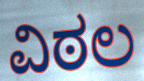
ವಿಠಲ